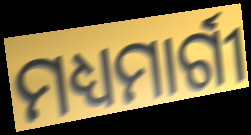
ମଧ୍ୟମାର୍ଗୀ